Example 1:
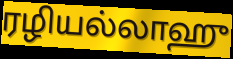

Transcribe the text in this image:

ரழியல்லாஹு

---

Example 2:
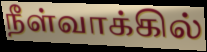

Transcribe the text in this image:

நீள்வாக்கில்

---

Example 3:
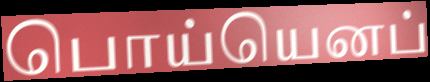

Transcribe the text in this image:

பொய்யெனப்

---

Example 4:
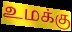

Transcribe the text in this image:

உமக்கு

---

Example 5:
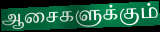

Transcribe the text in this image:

ஆசைகளுக்கும்